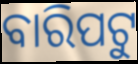
ବାରିପଟୁ